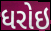
ધરોઇ